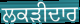
ਲਕੜੀਦਾਰ